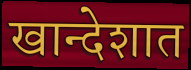
खान्देशात